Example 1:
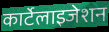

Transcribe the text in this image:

कार्टेलाइजेशन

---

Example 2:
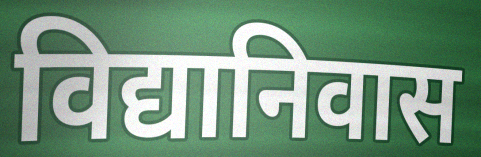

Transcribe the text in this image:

विद्यानिवास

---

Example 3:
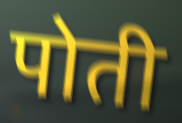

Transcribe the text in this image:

पोती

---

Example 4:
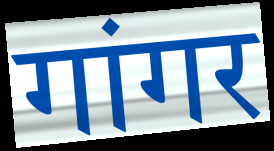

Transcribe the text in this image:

गांगर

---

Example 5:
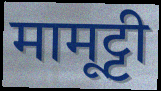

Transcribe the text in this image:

मामूट्टी